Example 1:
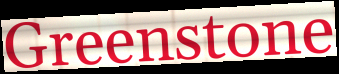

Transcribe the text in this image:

Greenstone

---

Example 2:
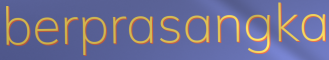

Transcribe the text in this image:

berprasangka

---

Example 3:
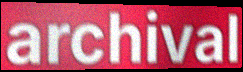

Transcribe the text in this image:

archival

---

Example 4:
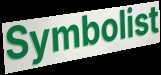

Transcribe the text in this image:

Symbolist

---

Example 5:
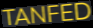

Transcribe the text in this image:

TANFED